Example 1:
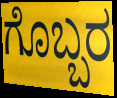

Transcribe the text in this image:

ಗೊಬ್ಬರ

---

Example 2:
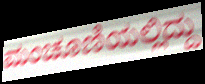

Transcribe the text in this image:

ಮಂಚೂಣಿಯಲ್ಲಿದ್ದು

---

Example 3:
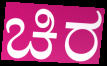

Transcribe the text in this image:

ಚಿರ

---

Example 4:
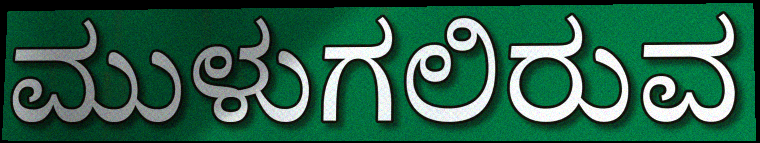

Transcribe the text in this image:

ಮುಳುಗಲಿರುವ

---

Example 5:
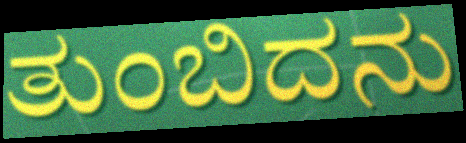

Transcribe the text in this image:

ತುಂಬಿದನು